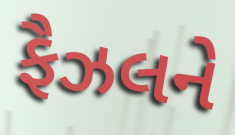
ફૈઝલને